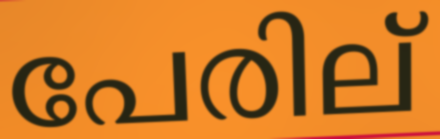
പേരില്